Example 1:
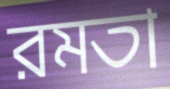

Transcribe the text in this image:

রমতা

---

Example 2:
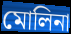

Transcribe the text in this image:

মোলিনা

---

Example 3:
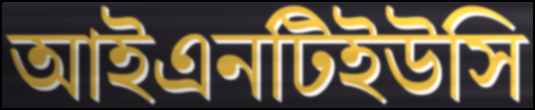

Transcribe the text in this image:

আইএনটিইউসি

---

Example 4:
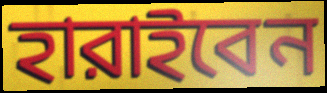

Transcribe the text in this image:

হারাইবেন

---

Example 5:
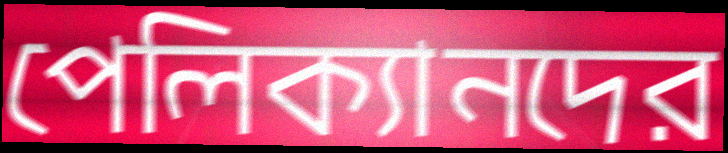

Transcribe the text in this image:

পেলিক্যানদের